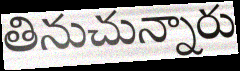
తినుచున్నారు